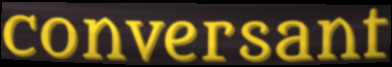
conversant